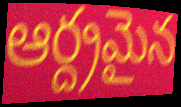
ఆర్ద్రమైన